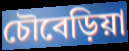
চৌবেড়িয়া